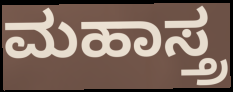
ಮಹಾಸ್ತ್ರ